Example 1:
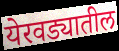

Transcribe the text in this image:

येरवड्यातील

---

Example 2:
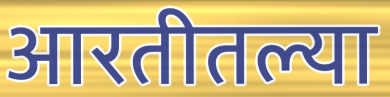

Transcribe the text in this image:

आरतीतल्या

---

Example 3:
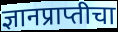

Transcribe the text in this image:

ज्ञानप्राप्तीचा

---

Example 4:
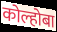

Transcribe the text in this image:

कोल्होबा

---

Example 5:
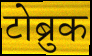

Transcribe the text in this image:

टोब्रुक